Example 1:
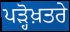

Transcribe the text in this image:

ਪੜ੍ਹੋਖ਼ਤਰੇ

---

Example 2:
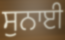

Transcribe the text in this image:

ਸੁਨਾਈ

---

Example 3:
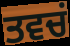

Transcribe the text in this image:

ਤਵਚਂ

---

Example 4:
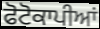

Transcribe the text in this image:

ਫੋਟੋਕਾਪੀਆਂ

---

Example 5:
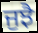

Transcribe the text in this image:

ਜੁਝੈ